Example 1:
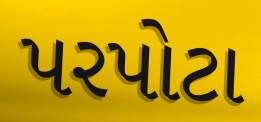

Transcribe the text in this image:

પરપોટા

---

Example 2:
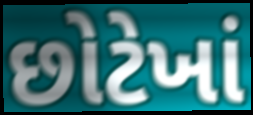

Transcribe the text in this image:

છોટેખાં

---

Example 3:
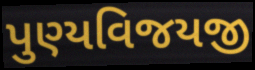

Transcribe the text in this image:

પુણ્યવિજયજી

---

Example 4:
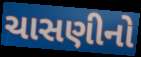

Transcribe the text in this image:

ચાસણીનો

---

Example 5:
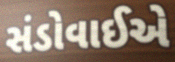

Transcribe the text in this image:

સંડોવાઈએ